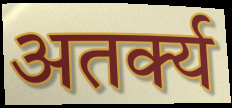
अतर्क्‍य